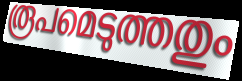
രൂപമെടുത്തതും